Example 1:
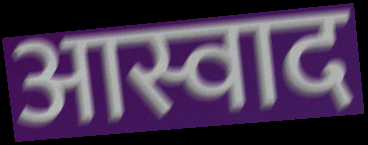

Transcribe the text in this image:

आस्वाद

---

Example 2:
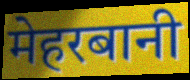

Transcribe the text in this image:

मेहरबानी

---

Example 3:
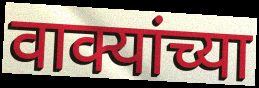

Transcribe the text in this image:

वाक्यांच्या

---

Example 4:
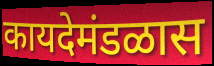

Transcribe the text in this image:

कायदेमंडळास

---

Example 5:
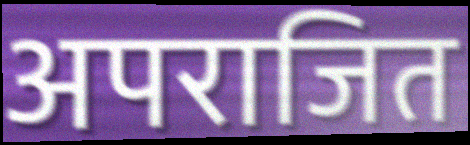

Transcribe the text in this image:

अपराजित